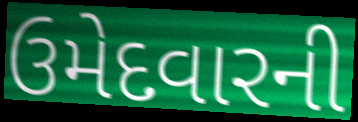
ઉમેદવારની